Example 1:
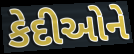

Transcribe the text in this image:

કેદીઓને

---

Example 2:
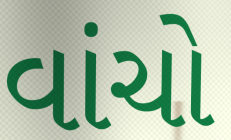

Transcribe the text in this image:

વાંચો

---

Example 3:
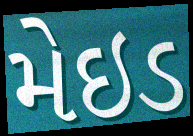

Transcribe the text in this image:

મેઇડ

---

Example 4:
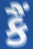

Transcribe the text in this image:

કૈં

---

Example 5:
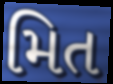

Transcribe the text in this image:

મિત